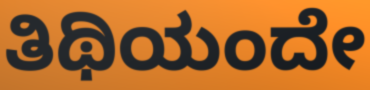
ತಿಥಿಯಂದೇ